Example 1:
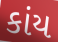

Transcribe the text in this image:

કાંય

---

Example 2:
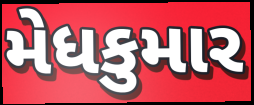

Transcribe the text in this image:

મેધકુમાર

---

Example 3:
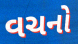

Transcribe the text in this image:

વચનો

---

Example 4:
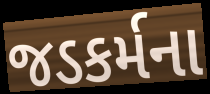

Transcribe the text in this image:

જડકર્મના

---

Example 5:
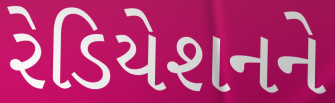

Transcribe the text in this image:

રેડિયેશનને